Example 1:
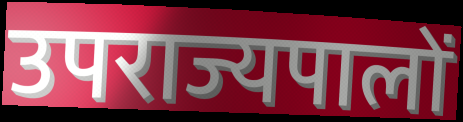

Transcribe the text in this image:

उपराज्यपालों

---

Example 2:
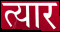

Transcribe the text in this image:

त्यार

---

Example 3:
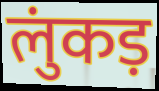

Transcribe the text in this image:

लुंकड़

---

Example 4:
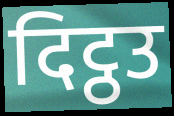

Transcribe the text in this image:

दिट्ठउ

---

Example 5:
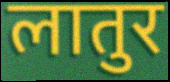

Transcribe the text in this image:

लातुर